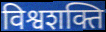
विश्वशक्ति